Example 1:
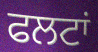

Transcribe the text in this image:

ਫਲਟਾਂ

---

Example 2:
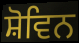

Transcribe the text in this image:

ਸ਼ੋਵਿਨ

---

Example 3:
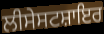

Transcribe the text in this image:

ਲੀਸੇਸਟਸ਼ਾਇਰ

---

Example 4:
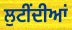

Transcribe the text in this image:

ਲੁਟੀਂਦੀਆਂ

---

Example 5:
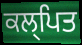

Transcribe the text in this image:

ਕਲ੍ਪਿਤ